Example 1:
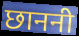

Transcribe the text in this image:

छाननी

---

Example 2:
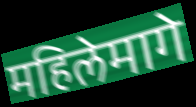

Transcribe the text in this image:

महिलेमागे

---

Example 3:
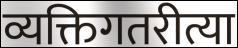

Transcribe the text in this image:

व्यक्तिगतरीत्या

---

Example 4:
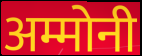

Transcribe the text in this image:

अम्मोनी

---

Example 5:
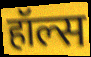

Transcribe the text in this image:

हॉल्स